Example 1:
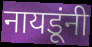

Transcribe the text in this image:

नायडूंनी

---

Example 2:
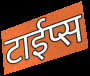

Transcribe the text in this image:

टाईप्स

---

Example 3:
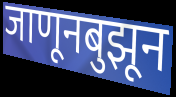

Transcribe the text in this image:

जाणूनबुझून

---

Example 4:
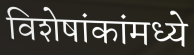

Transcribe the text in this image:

विशेषांकांमध्ये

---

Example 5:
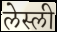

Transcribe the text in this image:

लेस्ली